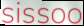
sissoo